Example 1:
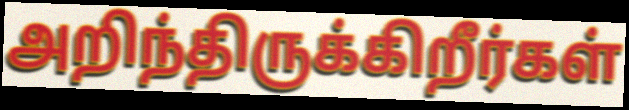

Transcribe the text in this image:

அறிந்திருக்கிறீர்கள்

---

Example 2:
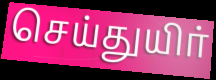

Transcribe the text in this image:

செய்துயிர்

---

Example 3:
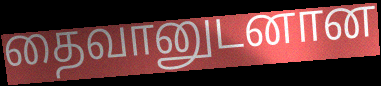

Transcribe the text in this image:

தைவானுடனான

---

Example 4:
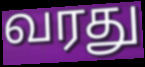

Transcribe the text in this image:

வரது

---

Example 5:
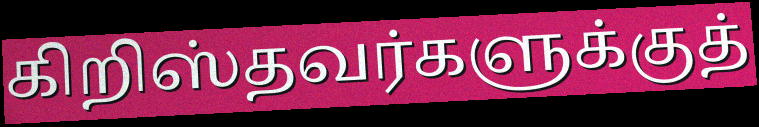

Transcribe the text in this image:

கிறிஸ்தவர்களுக்குத்